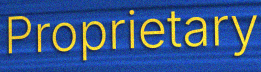
Proprietary